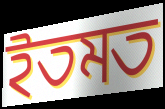
ইতমত